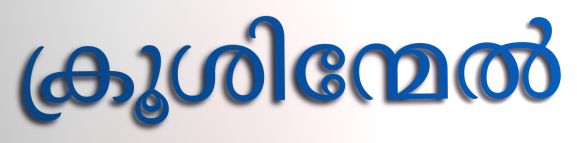
ക്രൂശിന്മേൽ